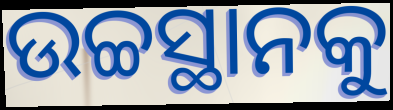
ଉଚ୍ଚସ୍ଥାନକୁ